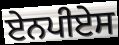
ਏਨਪੀਏਸ